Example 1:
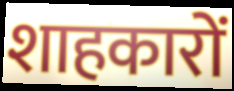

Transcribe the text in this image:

शाहकारों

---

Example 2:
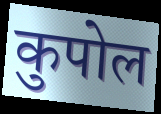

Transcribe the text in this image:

कुपोल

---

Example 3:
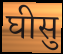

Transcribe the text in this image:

घीसु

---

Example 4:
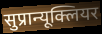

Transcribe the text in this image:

सुप्रान्यूक्लियर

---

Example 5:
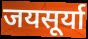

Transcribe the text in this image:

जयसूर्या